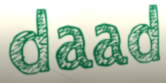
daad